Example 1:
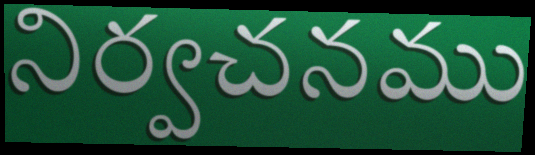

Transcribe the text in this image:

నిర్వచనము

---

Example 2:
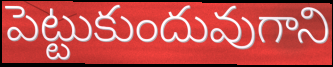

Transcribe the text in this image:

పెట్టుకుందువుగాని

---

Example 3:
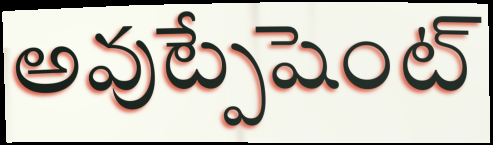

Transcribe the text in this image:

అవుట్పేషెంట్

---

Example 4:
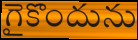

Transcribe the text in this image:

గైకొందును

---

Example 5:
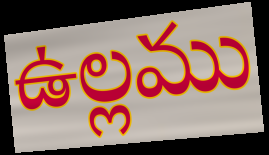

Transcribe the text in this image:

ఉల్లము